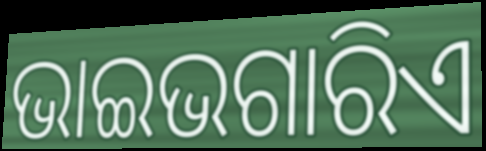
ଭାଇଭଗାରିଏ